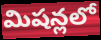
మిషన్లలో